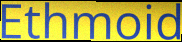
Ethmoid